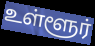
உள்ளூர்